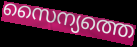
സൈന്യത്തെ